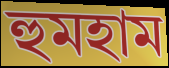
হুমহাম